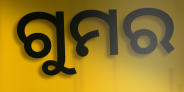
ଗୁମର